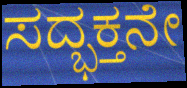
ಸದ್ಭಕ್ತನೇ